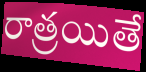
రాత్రయితే